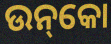
ଉନ୍‌କୋ